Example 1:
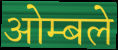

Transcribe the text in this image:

ओम्बले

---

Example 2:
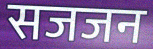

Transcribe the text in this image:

सजजन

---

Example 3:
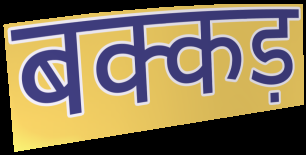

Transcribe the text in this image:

बक्कड़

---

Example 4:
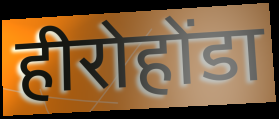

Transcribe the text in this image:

हीरोहोंडा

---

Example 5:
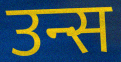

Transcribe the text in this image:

उन्स